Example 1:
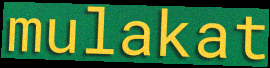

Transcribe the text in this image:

mulakat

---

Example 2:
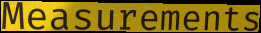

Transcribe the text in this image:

Measurements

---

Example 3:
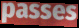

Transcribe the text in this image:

passes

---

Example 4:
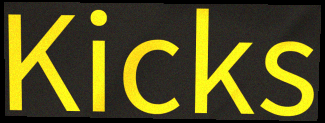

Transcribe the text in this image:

Kicks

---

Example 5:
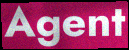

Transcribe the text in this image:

Agent